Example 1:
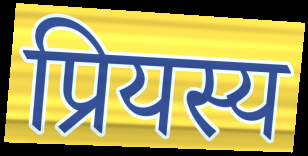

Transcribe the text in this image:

प्रियस्य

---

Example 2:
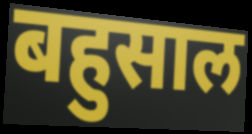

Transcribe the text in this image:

बहुसाल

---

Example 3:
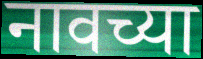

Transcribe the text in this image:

नावच्या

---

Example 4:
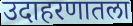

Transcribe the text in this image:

उदाहरणातला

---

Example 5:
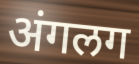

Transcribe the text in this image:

अंगलग